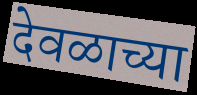
देवळाच्या